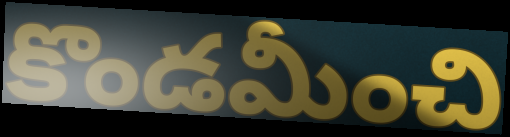
కొండమీంచి